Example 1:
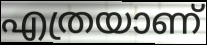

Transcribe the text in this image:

എത്രയാണ്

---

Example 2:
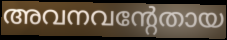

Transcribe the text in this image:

അവനവന്റേതായ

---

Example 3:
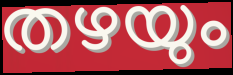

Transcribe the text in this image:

തഴയും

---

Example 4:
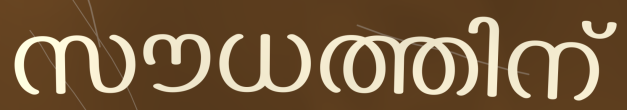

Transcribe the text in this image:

സൗധത്തിന്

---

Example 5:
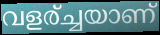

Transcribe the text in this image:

വളര്ച്ചയാണ്